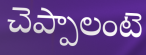
చెప్పాలంటె